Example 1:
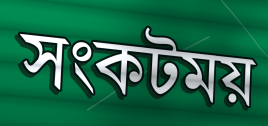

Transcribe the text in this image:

সংকটময়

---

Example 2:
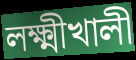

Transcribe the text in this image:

লক্ষ্মীখালী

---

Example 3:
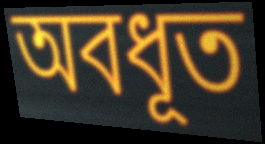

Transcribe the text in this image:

অবধূত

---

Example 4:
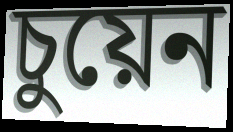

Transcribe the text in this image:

চুয়েন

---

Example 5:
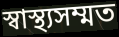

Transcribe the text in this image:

স্বাস্থ্যসম্মত